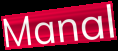
Manal